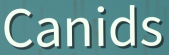
Canids